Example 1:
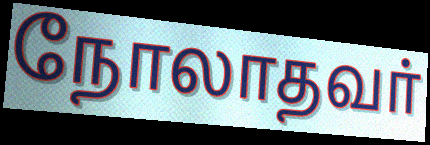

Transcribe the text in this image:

நோலாதவர்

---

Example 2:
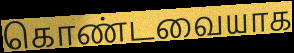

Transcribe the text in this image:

கொண்டவையாக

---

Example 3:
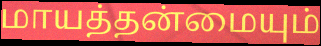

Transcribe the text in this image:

மாயத்தன்மையும்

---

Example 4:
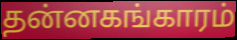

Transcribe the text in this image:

தன்னகங்காரம்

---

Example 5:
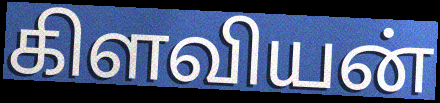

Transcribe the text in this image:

கிளவியன்